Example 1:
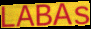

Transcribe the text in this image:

LABAs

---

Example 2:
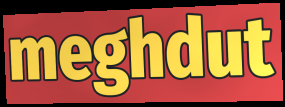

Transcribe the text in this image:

meghdut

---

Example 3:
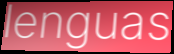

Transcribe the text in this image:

lenguas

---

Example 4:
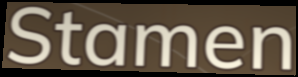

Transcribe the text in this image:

Stamen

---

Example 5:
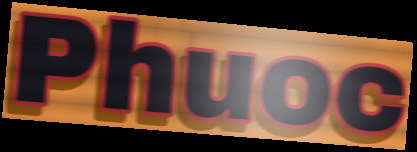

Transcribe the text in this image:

Phuoc